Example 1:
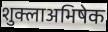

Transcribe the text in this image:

शुक्लाअभिषेक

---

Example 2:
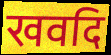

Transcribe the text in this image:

खवदि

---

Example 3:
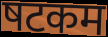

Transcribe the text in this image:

षटकम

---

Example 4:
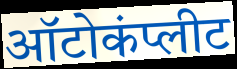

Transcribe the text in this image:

ऑटोकंप्लीट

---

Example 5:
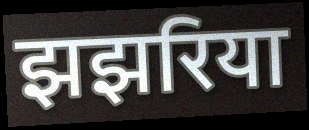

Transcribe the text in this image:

झझरिया